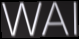
WAI